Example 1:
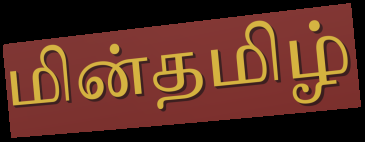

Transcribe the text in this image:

மின்தமிழ்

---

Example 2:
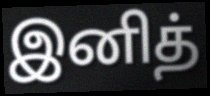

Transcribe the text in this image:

இனித்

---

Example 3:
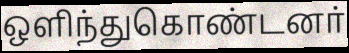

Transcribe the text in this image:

ஒளிந்துகொண்டனர்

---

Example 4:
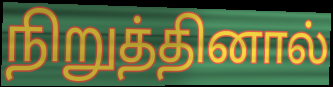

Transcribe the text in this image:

நிறுத்தினால்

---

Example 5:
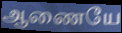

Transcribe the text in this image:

ஆணையே